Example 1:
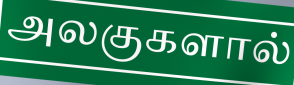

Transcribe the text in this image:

அலகுகளால்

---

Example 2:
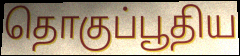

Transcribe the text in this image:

தொகுப்பூதிய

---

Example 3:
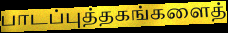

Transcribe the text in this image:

பாடப்புத்தகங்களைத்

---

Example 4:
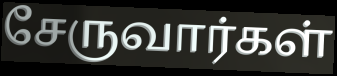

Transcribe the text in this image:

சேருவார்கள்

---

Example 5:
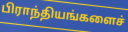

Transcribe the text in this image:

பிராந்தியங்களைச்